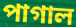
পাগাল